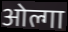
ओल्गा